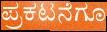
ಪ್ರಕಟನೆಗೂ